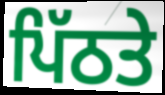
ਪਿੱਠਤੇ